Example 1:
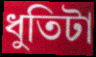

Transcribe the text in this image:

ধুতিটা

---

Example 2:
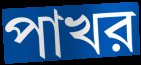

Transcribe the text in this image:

পাখর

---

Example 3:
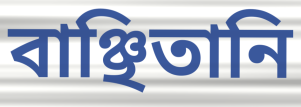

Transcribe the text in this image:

বাঞ্ছিতানি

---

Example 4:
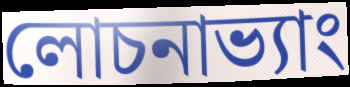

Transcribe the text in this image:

লোচনাভ্যাং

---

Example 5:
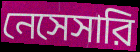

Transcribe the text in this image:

নেসেসারি